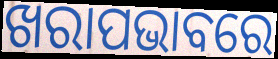
ଖରାପଭାବରେ